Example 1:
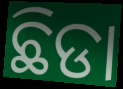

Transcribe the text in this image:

ଛିଡା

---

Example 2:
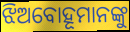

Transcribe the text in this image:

ଝିଅବୋହୂମାନଙ୍କୁ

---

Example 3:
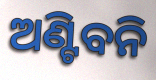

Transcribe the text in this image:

ଅଣ୍ଟିବନି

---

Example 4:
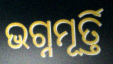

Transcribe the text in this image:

ଭଗ୍ନମୂର୍ତ୍ତି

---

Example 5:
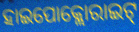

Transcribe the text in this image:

ହାଇପୋକ୍ଲୋରାଇଟ୍